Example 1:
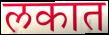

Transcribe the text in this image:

लकात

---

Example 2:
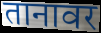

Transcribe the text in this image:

तानावर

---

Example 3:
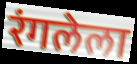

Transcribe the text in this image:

रंगलेला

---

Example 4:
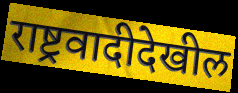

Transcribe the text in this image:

राष्ट्रवादीदेखील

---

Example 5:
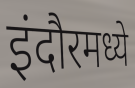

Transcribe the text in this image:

इंदौरमध्ये